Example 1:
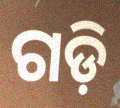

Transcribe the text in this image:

ଗଡ଼ି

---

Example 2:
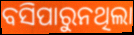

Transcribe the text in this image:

ବସିପାରୁନଥିଲା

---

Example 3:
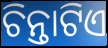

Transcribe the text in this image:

ଚିନ୍ତାଟିଏ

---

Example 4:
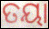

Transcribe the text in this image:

ତୟା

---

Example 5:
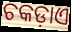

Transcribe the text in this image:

ଚକଡ଼ାଏ